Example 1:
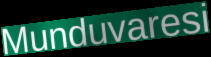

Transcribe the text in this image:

Munduvaresi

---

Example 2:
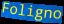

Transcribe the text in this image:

Foligno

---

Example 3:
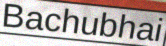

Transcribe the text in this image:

Bachubhai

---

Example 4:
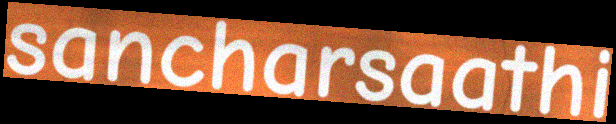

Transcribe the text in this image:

sancharsaathi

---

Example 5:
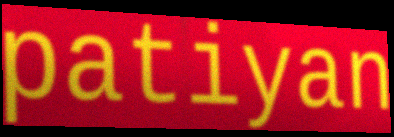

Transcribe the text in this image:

patiyan